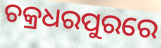
ଚକ୍ରଧରପୁରରେ